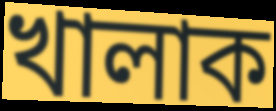
খালাক